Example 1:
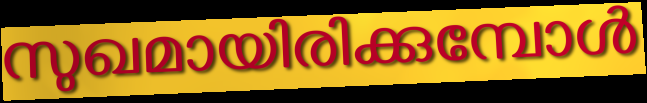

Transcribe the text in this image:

സുഖമായിരിക്കുമ്പോൾ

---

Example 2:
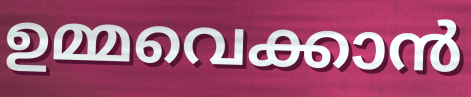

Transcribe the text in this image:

ഉമ്മവെക്കാൻ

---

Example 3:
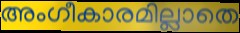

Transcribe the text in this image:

അംഗീകാരമില്ലാതെ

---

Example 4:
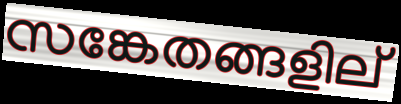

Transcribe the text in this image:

സങ്കേതങ്ങളില്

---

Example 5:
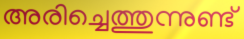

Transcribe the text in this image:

അരിച്ചെത്തുന്നുണ്ട്